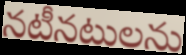
నటీనటులను